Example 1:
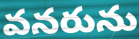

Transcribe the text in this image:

వనరును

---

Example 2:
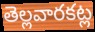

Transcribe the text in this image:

తెల్లవారకట్ల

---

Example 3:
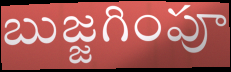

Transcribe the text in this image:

బుజ్జగింపూ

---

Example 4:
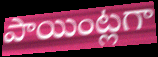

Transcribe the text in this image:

పాయింట్లగా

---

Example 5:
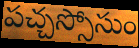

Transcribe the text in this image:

పచ్చస్సోసుం